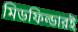
মিডফিল্ডারই